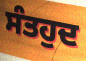
ਸੰਤਹੁਦ